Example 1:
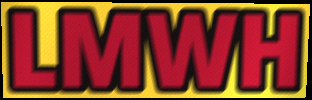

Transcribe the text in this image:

LMWH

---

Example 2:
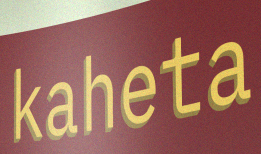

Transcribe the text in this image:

kaheta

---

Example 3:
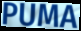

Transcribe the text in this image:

PUMA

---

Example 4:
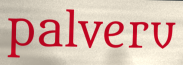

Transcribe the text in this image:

palveru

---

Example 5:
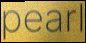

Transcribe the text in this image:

pearl